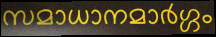
സമാധാനമാർഗ്ഗം